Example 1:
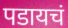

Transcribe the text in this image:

पडायचं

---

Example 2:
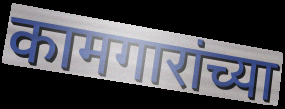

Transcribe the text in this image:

कामगारांच्या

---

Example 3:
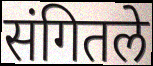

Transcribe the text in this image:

संगितले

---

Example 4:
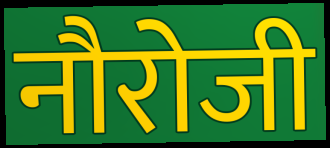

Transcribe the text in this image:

नौरोजी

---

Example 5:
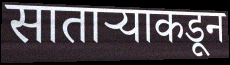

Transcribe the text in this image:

साताऱ्याकडून